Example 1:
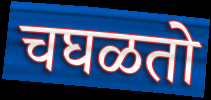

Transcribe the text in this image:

चघळतो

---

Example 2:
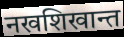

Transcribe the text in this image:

नखशिखान्त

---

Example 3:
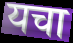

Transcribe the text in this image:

यचा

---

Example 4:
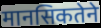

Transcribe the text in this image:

मानसिकतेने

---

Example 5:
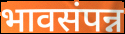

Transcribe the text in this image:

भावसंपन्न